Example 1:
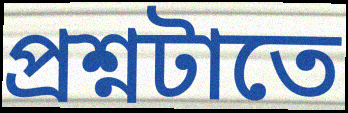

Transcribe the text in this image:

প্রশ্নটাতে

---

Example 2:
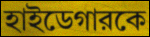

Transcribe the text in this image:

হাইডেগারকে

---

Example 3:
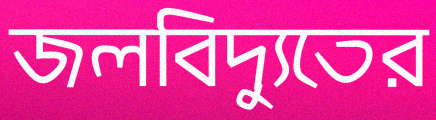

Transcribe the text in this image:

জলবিদ্যুতের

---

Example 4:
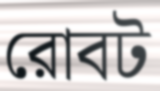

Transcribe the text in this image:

রোবট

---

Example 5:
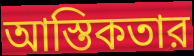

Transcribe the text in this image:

আস্তিকতার